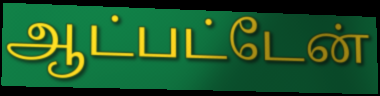
ஆட்பட்டேன்